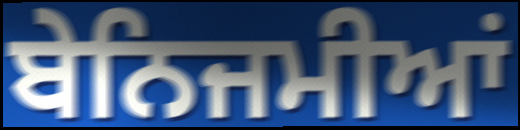
ਬੇਨਿਜਮੀਆਂ